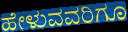
ಹೇಳುವವರಿಗೂ